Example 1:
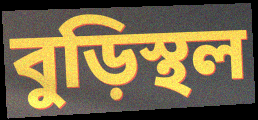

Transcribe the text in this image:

বুড়িস্থল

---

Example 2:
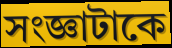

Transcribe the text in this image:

সংজ্ঞাটাকে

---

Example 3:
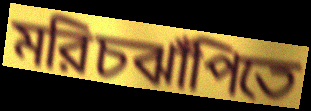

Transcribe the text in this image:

মরিচঝাঁপিতে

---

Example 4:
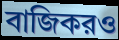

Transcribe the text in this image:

বাজিকরও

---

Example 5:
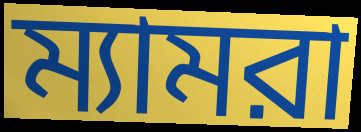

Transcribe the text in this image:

ম্যামরা